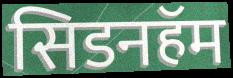
सिडनहॅम